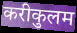
करीकुलम